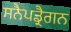
ਸਨੈਪਡ੍ਰੈਗਨ